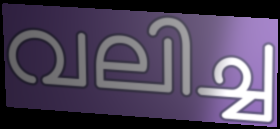
വലിച്ച